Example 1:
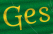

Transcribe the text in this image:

Ges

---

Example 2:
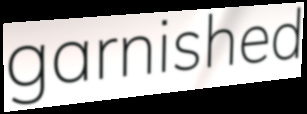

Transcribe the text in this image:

garnished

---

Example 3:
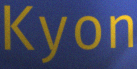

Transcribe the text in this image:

Kyon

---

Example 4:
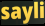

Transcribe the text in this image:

sayli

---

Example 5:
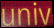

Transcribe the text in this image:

univ